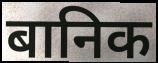
बानिक